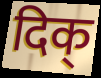
दिक्